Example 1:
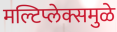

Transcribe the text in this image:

मल्टिप्लेक्समुळे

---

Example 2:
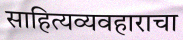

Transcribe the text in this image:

साहित्यव्यवहाराचा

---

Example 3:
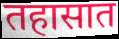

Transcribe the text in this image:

तहासात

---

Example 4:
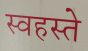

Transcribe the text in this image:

स्वहस्ते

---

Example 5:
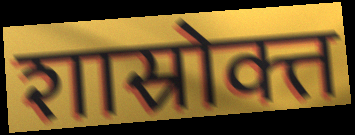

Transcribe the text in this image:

शास्रोक्त